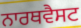
ਨਾਰਥਵੈਸਟ